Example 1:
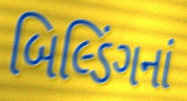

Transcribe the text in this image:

બિલ્ડિંગનાં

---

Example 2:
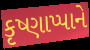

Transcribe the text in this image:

કૃષ્ણાપ્પાને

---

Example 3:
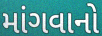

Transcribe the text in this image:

માંગવાનો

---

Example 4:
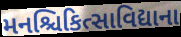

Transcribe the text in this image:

મનશ્ચિકિત્સાવિદ્યાના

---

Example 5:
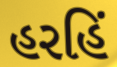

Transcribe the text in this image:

હરહિં